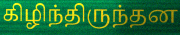
கிழிந்திருந்தன